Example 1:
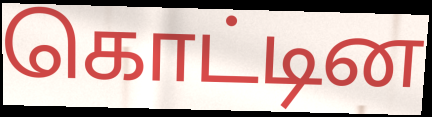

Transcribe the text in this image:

கொட்டின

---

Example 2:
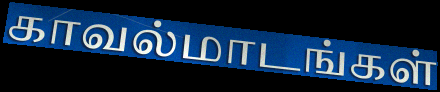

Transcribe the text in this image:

காவல்மாடங்கள்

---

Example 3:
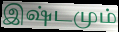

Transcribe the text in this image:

இஷ்டமும்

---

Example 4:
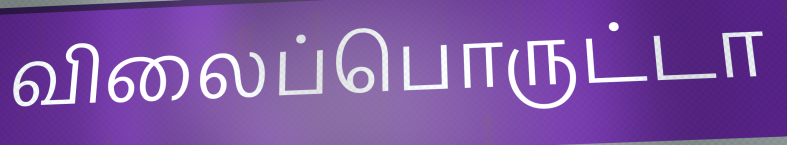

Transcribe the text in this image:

விலைப்பொருட்டா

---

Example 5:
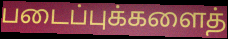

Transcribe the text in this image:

படைப்புக்களைத்